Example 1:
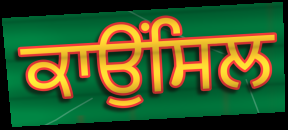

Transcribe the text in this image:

ਕਾਉਂਸਿਲ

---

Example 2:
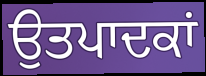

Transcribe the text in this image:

ਉਤਪਾਦਕਾਂ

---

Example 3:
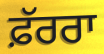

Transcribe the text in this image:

ਫ਼ੱਰਰਾ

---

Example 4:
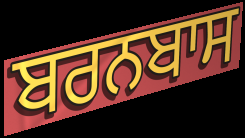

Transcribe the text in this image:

ਬਰਨਬਾਸ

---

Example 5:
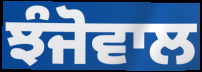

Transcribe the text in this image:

ਝੰਜੋਵਾਲ